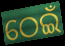
ଠେଇଁ